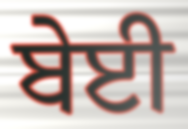
ਬੇਈ